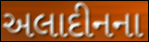
અલાદીનના